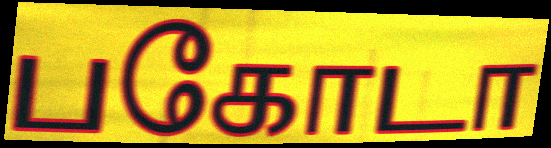
பகோடா